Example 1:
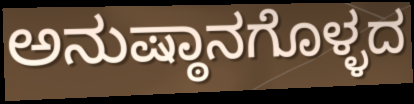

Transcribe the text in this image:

ಅನುಷ್ಠಾನಗೊಳ್ಳದ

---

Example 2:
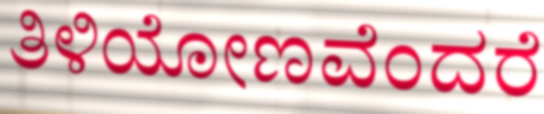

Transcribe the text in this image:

ತಿಳಿಯೋಣವೆಂದರೆ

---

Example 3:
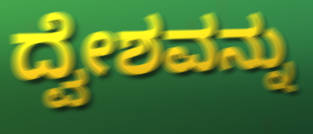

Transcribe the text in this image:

ದ್ವೇಶವನ್ನು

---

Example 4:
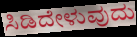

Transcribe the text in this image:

ಸಿಡಿದೇಳುವುದು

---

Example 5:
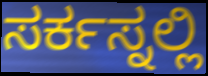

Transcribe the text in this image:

ಸರ್ಕಸ್ನಲ್ಲಿ